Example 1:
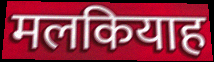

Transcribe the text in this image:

मलकियाह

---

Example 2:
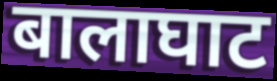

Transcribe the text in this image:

बालाघाट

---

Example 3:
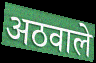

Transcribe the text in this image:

अठवाले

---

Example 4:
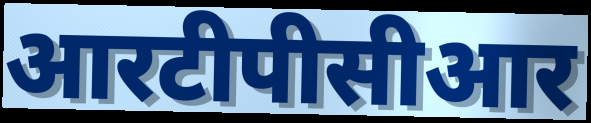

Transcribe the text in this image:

आरटीपीसीआर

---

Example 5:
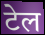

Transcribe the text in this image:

टेल